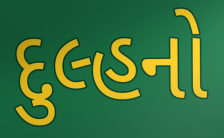
દુલ્હનો